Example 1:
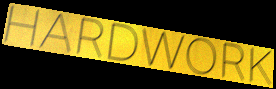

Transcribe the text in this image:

HARDWORK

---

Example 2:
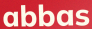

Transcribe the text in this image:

abbas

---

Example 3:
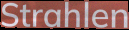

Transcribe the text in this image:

Strahlen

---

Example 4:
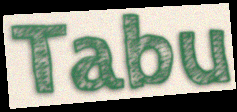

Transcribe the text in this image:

Tabu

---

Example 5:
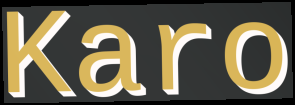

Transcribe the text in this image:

Karo